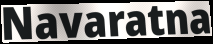
Navaratna